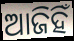
ଆଜିହିଁ